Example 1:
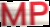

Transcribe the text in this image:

MP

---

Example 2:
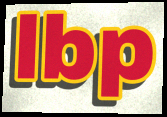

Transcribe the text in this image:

lbp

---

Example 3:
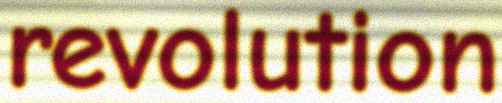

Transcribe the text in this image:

revolution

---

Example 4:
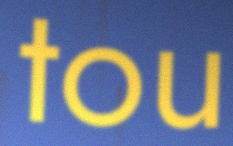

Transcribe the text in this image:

tou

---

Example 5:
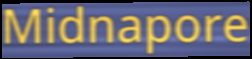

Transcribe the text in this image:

Midnapore